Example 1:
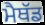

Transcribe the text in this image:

ਮੈਥੱਡ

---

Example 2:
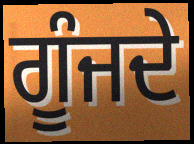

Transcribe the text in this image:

ਗੂੰਜਦੇ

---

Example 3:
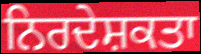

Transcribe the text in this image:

ਨਿਰਦੇਸ਼ਕਤਾ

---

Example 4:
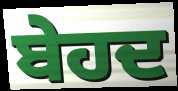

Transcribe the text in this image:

ਬੇਹਦ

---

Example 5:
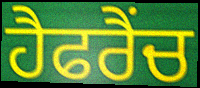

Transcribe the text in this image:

ਹੈਫਰੈਂਚ